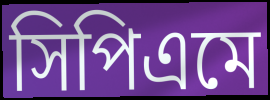
সিপিএমে